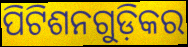
ପିଟିଶନଗୁଡ଼ିକର